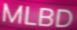
MLBD